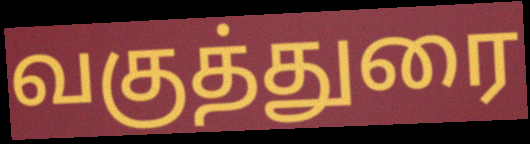
வகுத்துரை